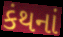
કંથનાં